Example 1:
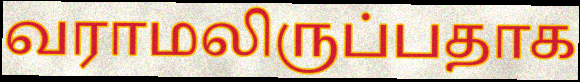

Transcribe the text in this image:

வராமலிருப்பதாக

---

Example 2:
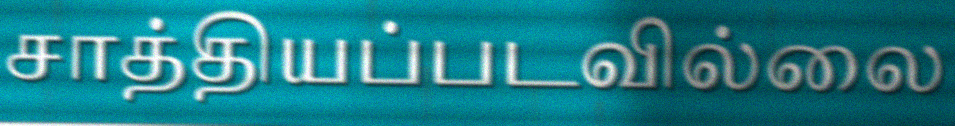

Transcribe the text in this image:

சாத்தியப்படவில்லை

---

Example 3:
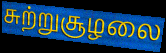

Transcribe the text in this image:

சுற்றுசூழலை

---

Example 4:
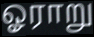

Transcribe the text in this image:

ஓராறு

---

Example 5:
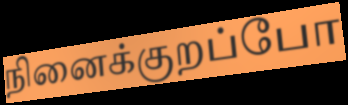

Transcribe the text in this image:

நினைக்குறப்போ